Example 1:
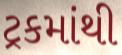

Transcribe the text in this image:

ટ્રકમાંથી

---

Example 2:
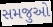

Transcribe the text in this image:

સમજુઓ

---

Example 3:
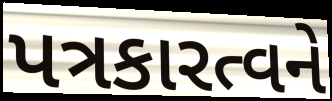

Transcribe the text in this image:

પત્રકારત્વને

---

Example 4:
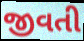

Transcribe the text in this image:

જીવતી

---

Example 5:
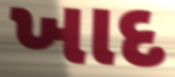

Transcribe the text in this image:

ખાદ